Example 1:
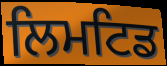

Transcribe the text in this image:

ਲਿਮਟਿਡ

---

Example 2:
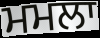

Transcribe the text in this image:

ਮਮਲਾ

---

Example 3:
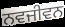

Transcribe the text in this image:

ਨਵਜੀਵਨ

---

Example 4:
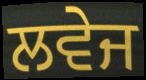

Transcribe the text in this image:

ਲਵੇਜ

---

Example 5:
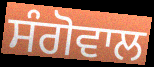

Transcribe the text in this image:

ਸੰਗੋਵਾਲ